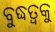
ବୁଦ୍ଧତ୍ଵକୁ